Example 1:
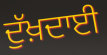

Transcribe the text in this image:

ਦੁੱਖ਼ਦਾਈ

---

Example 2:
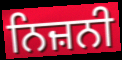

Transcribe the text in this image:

ਨਿਜ਼ਨੀ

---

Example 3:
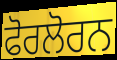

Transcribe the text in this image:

ਫੋਰਲੋਰਨ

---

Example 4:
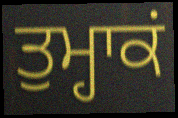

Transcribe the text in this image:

ਤੁਮ੍ਹਾਕਂ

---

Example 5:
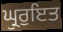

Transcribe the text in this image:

ਘ੍ਰੁਰੁਇਤ